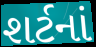
શર્ટનાં